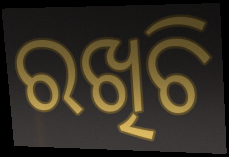
ରଖିଚି